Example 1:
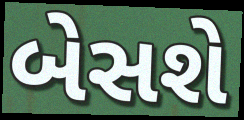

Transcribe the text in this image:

બેસશે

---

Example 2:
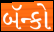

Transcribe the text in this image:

બૅન્કો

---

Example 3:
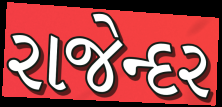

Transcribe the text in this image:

રાજેન્દર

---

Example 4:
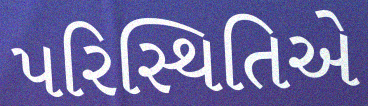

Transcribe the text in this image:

પરિસ્થિતિએ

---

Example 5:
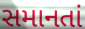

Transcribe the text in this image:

સમાનતાં